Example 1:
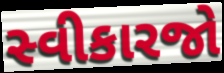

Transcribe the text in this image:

સ્વીકારજો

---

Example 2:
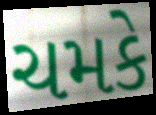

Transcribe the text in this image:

ચમકે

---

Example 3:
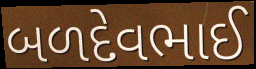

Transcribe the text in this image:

બળદેવભાઈ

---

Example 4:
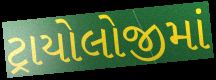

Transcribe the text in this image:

ટ્રાયોલોજીમાં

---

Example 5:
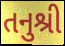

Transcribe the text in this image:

તનુશ્રી